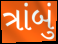
ત્રાંબું